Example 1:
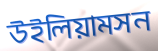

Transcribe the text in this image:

উইলিয়ামসন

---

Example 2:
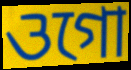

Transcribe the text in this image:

ওগো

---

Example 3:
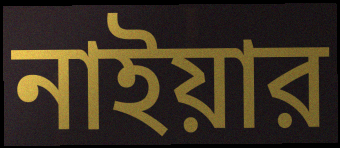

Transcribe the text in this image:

নাইয়ার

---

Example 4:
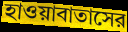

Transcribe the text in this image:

হাওয়াবাতাসের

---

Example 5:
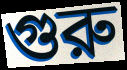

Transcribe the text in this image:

গুরু